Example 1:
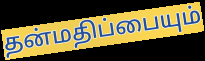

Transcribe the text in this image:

தன்மதிப்பையும்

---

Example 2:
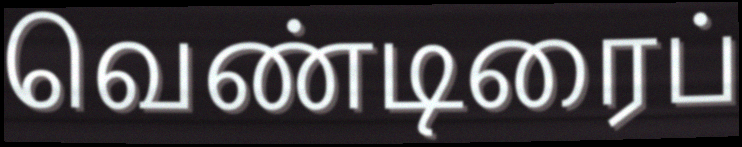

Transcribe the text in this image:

வெண்டிரைப்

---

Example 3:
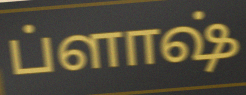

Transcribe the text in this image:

ப்ளாஷ்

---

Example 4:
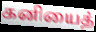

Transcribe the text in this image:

கனியைத்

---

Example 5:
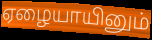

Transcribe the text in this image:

ஏழையாயினும்